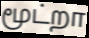
மூட்றா